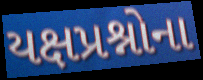
યક્ષપ્રશ્નોના